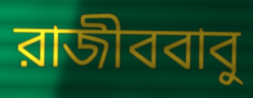
রাজীববাবু